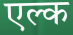
एल्क